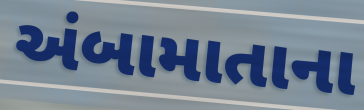
અંબામાતાના